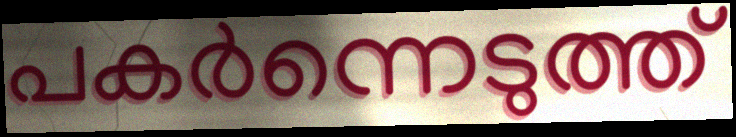
പകർന്നെടുത്ത്